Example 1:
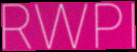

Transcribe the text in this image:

RWPI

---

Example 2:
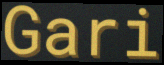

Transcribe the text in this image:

Gari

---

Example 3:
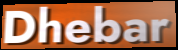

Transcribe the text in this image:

Dhebar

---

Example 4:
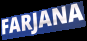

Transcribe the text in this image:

FARJANA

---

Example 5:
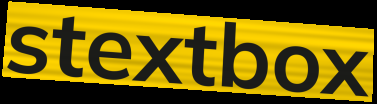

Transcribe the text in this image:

stextbox